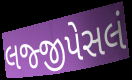
લજ્જીપેસલં